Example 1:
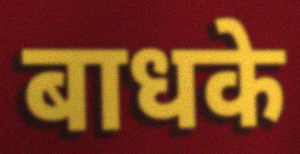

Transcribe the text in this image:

बाधके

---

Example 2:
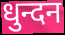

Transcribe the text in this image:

धुन्दन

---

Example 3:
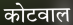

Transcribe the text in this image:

कोटवाल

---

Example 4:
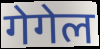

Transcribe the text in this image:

गेगेल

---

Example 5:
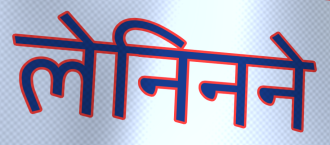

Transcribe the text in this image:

लेनिनने